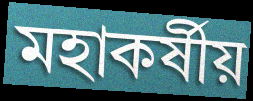
মহাকর্ষীয়